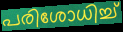
പരിശോധിച്ച്